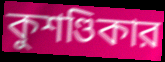
কুশণ্ডিকার